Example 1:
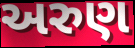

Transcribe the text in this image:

અરુણ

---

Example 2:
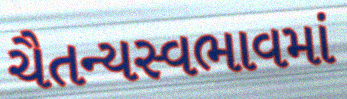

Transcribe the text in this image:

ચૈતન્યસ્વભાવમાં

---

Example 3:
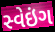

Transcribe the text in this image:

સ્વેઇંગ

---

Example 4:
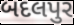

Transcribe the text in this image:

બદલપુર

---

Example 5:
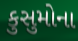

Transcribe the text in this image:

કુસુમોના